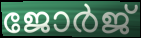
ജോർജ്